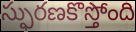
స్ఫురణకొస్తోంది